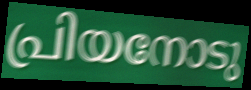
പ്രിയനോടു